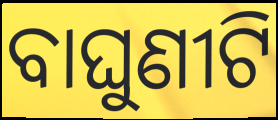
ବାଘୁଣୀଟି